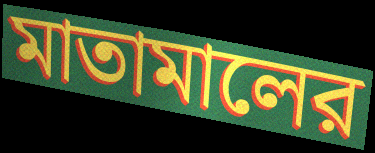
মাতামালের